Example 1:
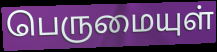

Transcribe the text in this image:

பெருமையுள்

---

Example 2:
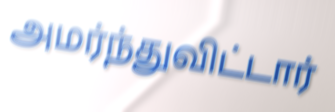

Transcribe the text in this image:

அமர்ந்துவிட்டார்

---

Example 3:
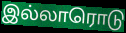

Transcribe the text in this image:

இல்லாரொடு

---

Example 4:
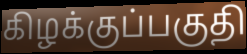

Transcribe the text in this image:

கிழக்குப்பகுதி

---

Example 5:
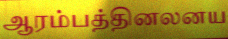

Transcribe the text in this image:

ஆரம்பத்தினலனய